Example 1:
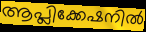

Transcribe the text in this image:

ആപ്ലിക്കേഷനിൽ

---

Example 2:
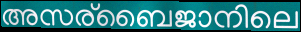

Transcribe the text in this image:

അസര്ബൈജാനിലെ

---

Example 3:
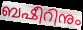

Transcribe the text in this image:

ബഷീറിനും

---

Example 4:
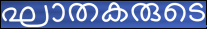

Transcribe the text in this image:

ഘാതകരുടെ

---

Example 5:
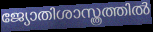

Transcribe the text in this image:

ജ്യോതിശാസ്ത്രത്തിൽ